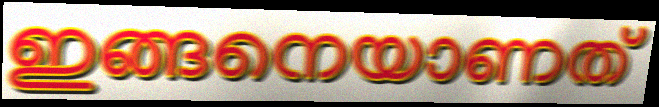
ഇങ്ങനെയാണത്